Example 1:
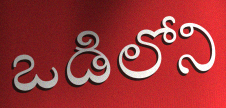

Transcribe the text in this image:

ఒడిలోని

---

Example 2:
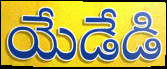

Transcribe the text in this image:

యేడేడి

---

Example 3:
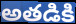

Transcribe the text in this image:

అతడికి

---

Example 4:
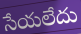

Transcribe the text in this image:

సేయలేదు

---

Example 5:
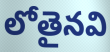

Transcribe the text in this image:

లోతైనవి